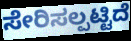
ಸೇರಿಸಲ್ಪಟ್ಟಿದೆ